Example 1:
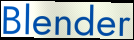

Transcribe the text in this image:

Blender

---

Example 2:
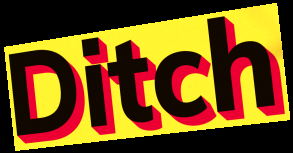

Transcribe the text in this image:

Ditch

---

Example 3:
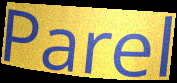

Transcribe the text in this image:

Parel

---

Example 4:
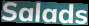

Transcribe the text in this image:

Salads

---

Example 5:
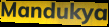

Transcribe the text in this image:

Mandukya